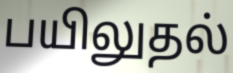
பயிலுதல்